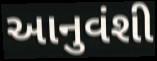
આનુવંશી